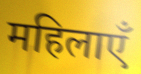
महिलाएँ